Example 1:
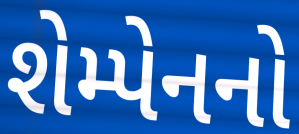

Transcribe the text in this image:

શેમ્પેનનો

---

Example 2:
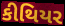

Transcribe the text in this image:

કીથિયર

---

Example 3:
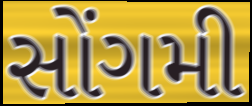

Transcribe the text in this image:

સોંગમી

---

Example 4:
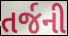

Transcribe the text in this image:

તર્જની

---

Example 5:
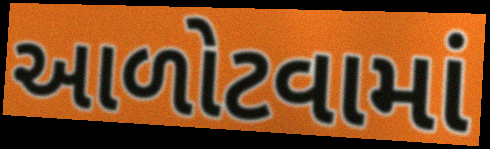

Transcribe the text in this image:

આળોટવામાં